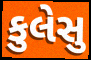
કુલેસુ